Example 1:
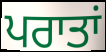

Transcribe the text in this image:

ਪਰਾਤਾਂ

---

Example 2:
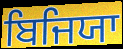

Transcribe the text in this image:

ਬਿਜਿਯਾ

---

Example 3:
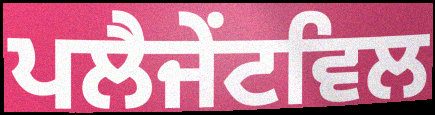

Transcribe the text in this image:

ਪਲੈਜੇਂਟਵਿਲ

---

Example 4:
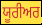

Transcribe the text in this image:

ਯੂਰੀਅਰ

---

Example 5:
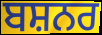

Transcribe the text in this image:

ਬਸ਼ਨਰ